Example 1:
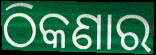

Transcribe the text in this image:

ଠିକଣାର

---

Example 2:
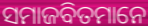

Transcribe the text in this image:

ସମାଜବିତମାନେ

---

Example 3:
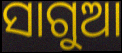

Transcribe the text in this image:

ସାଗୁଆ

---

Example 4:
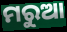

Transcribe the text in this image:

ମରୁଆ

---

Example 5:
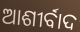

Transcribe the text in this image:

ଆଶୀର୍ବାଦ